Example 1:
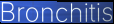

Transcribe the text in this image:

Bronchitis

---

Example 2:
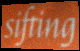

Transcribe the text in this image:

sifting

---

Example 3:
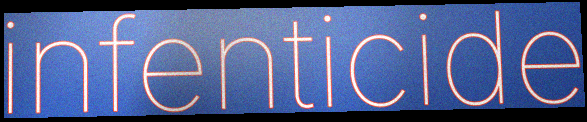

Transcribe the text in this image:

infenticide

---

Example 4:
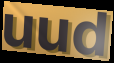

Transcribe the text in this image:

uud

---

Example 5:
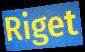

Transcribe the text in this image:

Riget